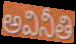
అవినీతి